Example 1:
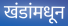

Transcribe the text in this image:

खंडांमधून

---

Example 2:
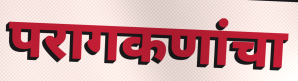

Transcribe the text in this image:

परागकणांचा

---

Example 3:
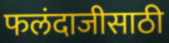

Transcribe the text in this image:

फलंदाजीसाठी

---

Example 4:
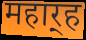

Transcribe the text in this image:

महार्ह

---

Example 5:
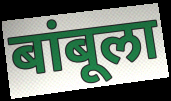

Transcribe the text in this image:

बांबूला